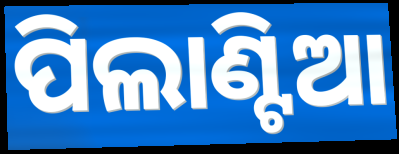
ପିଲାଣ୍ଟିଆ